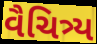
વૈચિત્ર્ય